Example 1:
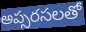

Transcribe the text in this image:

అప్సరసలతో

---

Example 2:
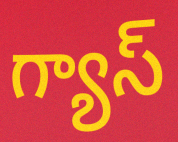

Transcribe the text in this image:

గ్యాస్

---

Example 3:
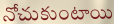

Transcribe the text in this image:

నోచుకుంటాయి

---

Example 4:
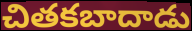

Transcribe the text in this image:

చితకబాదాడు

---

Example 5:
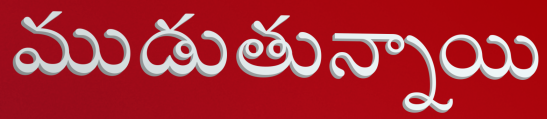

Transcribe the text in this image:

ముడుతున్నాయి